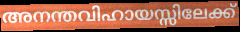
അനന്തവിഹായസ്സിലേക്ക്